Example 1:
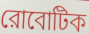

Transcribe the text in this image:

রোবোটিক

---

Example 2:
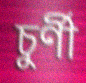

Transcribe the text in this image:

চুর্ণী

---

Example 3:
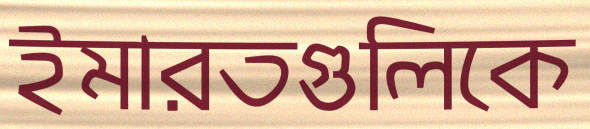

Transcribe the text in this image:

ইমারতগুলিকে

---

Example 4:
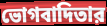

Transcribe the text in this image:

ভোগবাদিতার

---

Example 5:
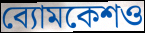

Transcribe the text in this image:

ব্যোমকেশও